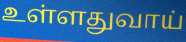
உள்ளதுவாய்